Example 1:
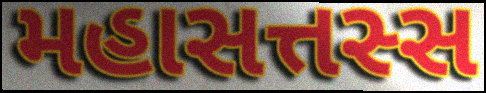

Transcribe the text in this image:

મહાસત્તસ્સ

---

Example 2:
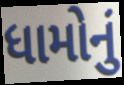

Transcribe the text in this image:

ધામોનું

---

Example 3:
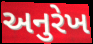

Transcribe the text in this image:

અનુરેખ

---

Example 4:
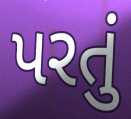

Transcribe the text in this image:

પરતું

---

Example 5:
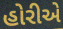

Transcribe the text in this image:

હોરીએ